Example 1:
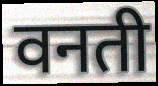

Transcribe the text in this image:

वनती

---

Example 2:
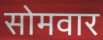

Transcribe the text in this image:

सोमवार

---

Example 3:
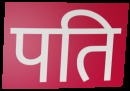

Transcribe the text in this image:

पति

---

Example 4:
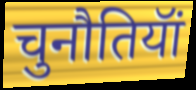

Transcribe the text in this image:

चुनौतियॉं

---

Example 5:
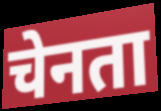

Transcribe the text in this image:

चेनता